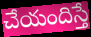
చేయందిస్తే